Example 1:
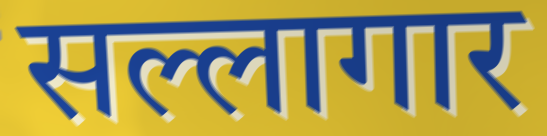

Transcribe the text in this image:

सल्‍लागार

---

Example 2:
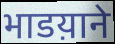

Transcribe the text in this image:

भाडय़ाने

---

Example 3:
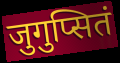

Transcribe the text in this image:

जुगुप्सितं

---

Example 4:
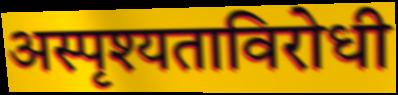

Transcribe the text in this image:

अस्पृश्यताविरोधी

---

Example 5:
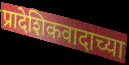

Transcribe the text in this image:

प्रादेशिकवादाच्या